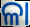
ଳା